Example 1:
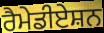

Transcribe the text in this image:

ਰੈਮੇਡੀਏਸ਼ਨ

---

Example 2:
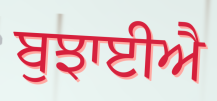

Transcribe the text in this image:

ਬੁਝਾਈਐ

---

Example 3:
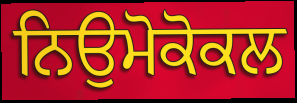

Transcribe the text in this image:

ਨਿਉਮੋਕੋਕਲ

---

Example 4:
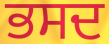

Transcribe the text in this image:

ਭਸਦ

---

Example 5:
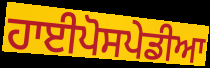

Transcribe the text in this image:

ਹਾਈਪੋਸਪੇਡੀਆ